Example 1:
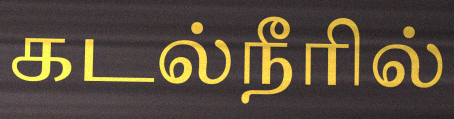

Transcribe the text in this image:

கடல்நீரில்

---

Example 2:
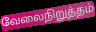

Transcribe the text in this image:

வேலைநிறுத்தம்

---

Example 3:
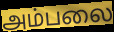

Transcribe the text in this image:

அம்பலை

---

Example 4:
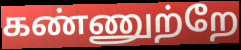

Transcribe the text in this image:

கண்ணுற்றே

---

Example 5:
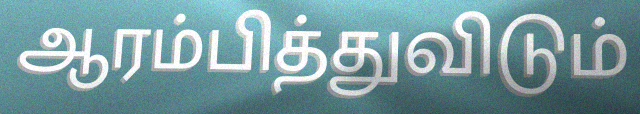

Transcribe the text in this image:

ஆரம்பித்துவிடும்